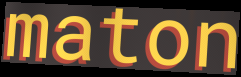
maton